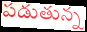
పడుతున్న